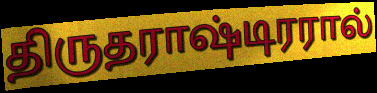
திருதராஷ்டிரரால்